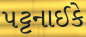
પટ્ટનાઈકે